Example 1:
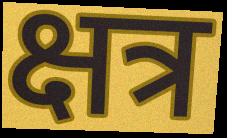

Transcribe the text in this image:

क्षत्र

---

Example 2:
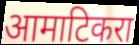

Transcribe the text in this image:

आमाटिकरा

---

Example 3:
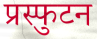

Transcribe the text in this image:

प्रस्फुटन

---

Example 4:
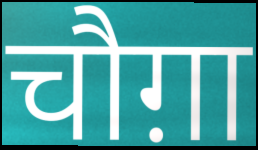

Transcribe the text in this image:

चौग़ा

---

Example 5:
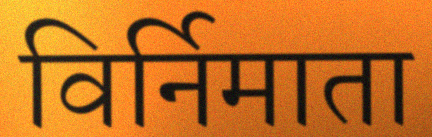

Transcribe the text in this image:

विर्निमाता